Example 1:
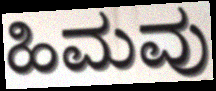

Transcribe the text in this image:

ಹಿಮವು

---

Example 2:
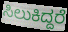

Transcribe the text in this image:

ಸಿಲುಕಿದ್ದರೆ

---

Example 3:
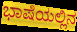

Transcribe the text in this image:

ಭಾಷೆಯಲ್ಲಿನ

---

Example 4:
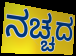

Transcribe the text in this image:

ನಚ್ಚದ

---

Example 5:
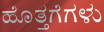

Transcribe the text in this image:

ಹೊತ್ತಗೆಗಳು